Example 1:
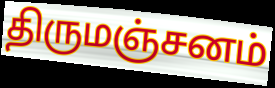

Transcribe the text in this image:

திருமஞ்சனம்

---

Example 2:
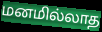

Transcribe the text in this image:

மனமில்லாத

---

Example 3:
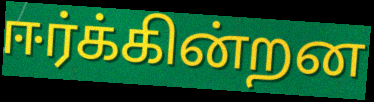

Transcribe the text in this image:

ஈர்க்கின்றன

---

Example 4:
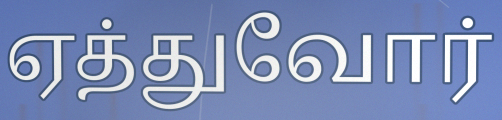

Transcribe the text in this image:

ஏத்துவோர்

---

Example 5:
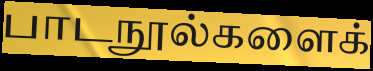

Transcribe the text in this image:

பாடநூல்களைக்